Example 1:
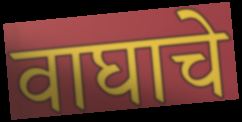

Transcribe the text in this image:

वाघाचे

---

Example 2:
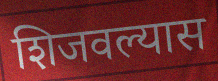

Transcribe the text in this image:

शिजवल्यास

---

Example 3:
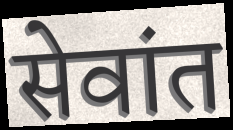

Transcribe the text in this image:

सेवांत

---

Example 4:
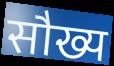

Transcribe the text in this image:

सौख्य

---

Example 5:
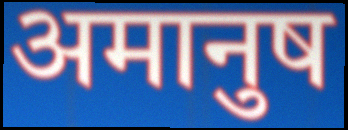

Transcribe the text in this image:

अमानुष